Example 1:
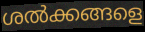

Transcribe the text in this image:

ശൽക്കങ്ങളെ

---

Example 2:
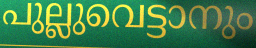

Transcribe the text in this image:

പുല്ലുവെട്ടാനും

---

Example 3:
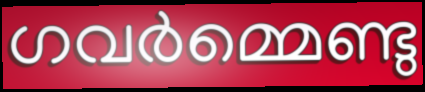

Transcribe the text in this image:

ഗവർമ്മെണ്ടു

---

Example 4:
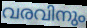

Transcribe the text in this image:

വരവിനും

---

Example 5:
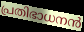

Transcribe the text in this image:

പ്രതിഭാധനൻ